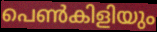
പെൺകിളിയും